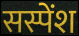
सस्पेंश